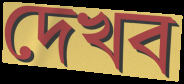
দেখব